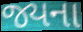
જ્યના